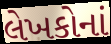
લેખકોનાં